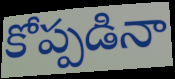
కోప్పడినా